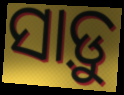
ସାଡ଼ୁ